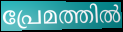
പ്രേമത്തിൽ